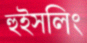
হুইসলিং